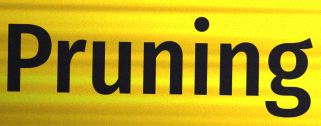
Pruning